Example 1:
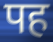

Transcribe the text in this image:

पह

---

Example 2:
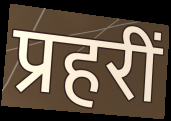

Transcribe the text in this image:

प्रहरीं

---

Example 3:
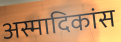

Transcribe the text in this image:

अस्मादिकांस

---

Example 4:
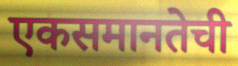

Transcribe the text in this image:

एकसमानतेची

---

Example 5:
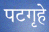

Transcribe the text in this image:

पटगृहे